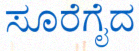
ಸೂರೆಗೈದ